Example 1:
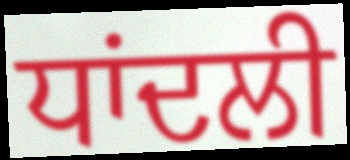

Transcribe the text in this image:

ਧਾਂਦਲੀ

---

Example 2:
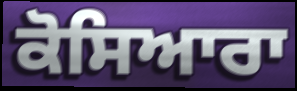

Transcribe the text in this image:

ਕੋਸਿਆਰਾ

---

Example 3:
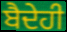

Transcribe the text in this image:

ਬੈਦੇਹੀ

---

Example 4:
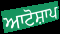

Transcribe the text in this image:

ਆਟੋਸ਼ਾਪ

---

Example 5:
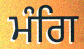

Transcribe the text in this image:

ਮੰਗਿ